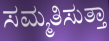
ಸಮ್ಮತಿಸುತ್ತಾ